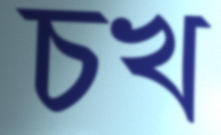
চখ